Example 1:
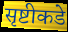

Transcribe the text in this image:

सृष्टीकडे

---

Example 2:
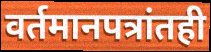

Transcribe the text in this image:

वर्तमानपत्रांतही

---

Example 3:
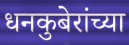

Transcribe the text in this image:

धनकुबेरांच्या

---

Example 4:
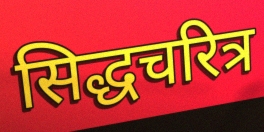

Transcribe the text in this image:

सिद्धचरित्र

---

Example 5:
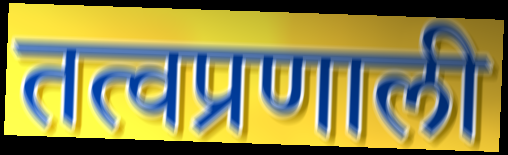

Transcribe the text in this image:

तत्वप्रणाली